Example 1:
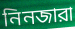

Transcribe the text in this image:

নিনজারা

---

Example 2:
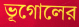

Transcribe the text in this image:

ভূগোলের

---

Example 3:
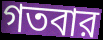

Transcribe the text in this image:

গতবার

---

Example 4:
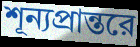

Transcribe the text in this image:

শূন্যপ্রান্তরে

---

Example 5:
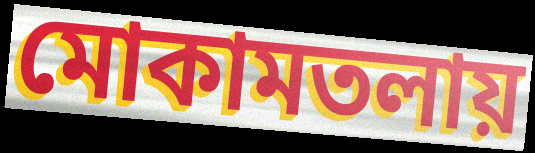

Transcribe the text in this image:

মোকামতলায়